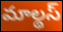
మాల్థస్